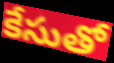
కేసుతో